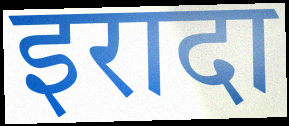
इरादा